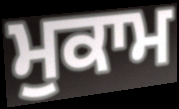
ਮੁਕਾਮ